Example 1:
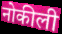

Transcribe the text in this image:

नोकीली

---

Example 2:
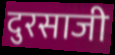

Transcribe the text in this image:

दुरसाजी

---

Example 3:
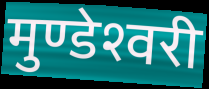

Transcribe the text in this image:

मुण्डेश्वरी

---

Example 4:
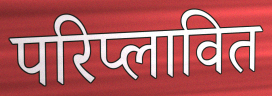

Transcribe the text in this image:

परिप्लावित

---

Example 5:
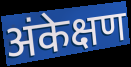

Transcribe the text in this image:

अंकेक्षण